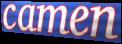
camen